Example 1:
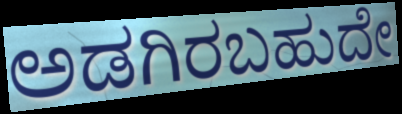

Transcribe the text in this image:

ಅಡಗಿರಬಹುದೇ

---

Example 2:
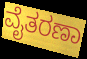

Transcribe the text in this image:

ವೈತರಣಾ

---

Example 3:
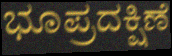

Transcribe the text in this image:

ಭೂಪ್ರದಕ್ಷಿಣೆ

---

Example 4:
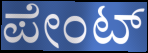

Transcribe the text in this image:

ಪೇಂಟ್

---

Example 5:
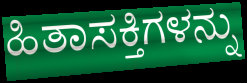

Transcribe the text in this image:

ಹಿತಾಸಕ್ತಿಗಳನ್ನು